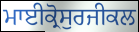
ਮਾਈਕ੍ਰੋਸੁਰਜੀਕਲ